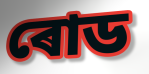
ৰোড